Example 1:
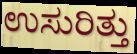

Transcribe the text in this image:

ಉಸುರಿತ್ತು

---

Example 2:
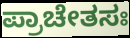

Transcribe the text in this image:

ಪ್ರಾಚೇತಸಃ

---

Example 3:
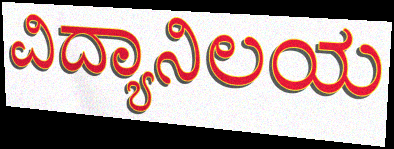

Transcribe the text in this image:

ವಿದ್ಯಾನಿಲಯ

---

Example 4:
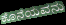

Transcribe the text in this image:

ಕೊನೆಯವನು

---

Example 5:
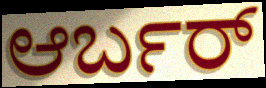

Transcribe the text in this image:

ಆರ್ಬರ್